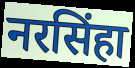
नरसिंहा